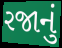
રજાનું